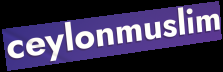
ceylonmuslim